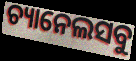
ଚ୍ୟାନେଲସବୁ